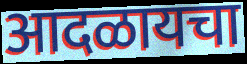
आदळायचा